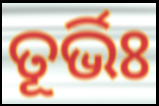
ତୂର୍ଭିଃ